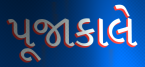
પૂજાકાલે